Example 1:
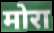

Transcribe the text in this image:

मोरा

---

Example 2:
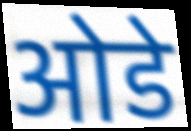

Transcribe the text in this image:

ओडे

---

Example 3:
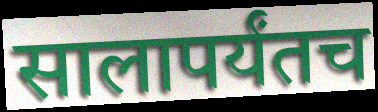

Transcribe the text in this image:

सालापर्यंतच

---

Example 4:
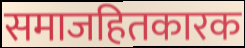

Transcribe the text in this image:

समाजहितकारक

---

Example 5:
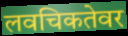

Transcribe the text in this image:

लवचिकतेवर